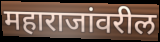
महाराजांवरील